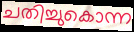
ചതിച്ചുകൊന്ന